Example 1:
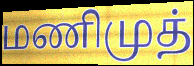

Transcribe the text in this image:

மணிமுத்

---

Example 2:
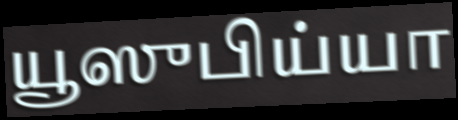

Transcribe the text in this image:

யூஸுபிய்யா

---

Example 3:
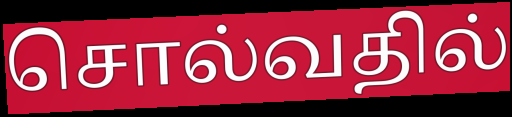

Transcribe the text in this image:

சொல்வதில்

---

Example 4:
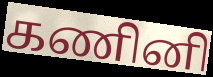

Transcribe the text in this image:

கணினி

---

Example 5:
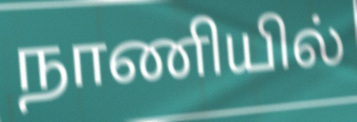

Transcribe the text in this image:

நாணியில்